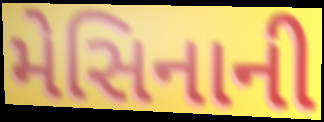
મેસિનાની